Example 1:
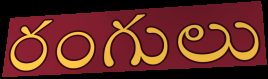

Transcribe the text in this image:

రంగులు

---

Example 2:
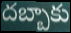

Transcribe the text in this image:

దబ్బాకు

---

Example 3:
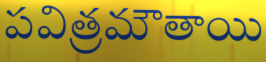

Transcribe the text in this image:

పవిత్రమౌతాయి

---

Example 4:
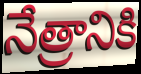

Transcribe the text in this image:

నేత్రానికి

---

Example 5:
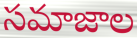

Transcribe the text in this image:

సమాజాల